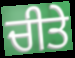
ਚੀਤੇ